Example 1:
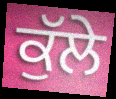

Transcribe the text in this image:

ਕੁੱਲੇ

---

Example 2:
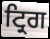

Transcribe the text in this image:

ਟ੍ਰਿਗ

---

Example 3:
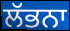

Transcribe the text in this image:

ਲੱਭਨਾ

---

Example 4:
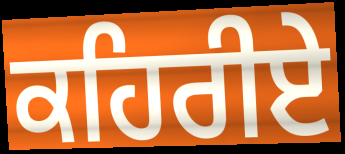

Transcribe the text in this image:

ਕਹਿਰੀਏ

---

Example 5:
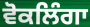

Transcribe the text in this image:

ਵੋਕਲਿੰਗਾ